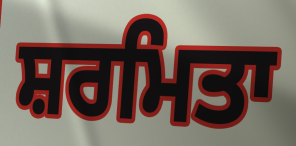
ਸ਼ਰਮਿਤਾ